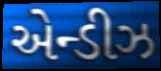
એન્ડીઝ